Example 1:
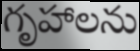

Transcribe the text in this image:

గృహాలను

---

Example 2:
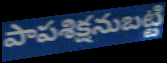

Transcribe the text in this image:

పాపశిక్షనుబట్టి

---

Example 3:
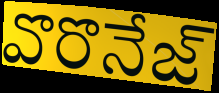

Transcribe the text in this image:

వొరొనేజ్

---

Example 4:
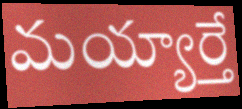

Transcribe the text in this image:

మయ్యార్తే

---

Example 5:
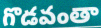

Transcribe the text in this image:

గొడవంతా